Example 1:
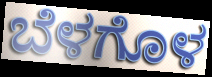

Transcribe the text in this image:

ಬೆಳಗೊಳ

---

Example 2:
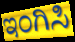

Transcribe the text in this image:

ಇಂಗಿಸಿ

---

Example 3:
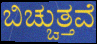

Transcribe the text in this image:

ಬಿಚ್ಚುತ್ತವೆ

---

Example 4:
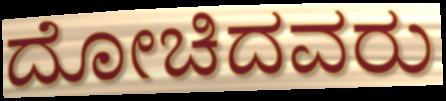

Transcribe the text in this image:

ದೋಚಿದವರು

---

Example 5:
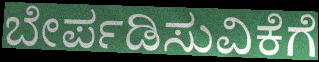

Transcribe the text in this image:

ಬೇರ್ಪಡಿಸುವಿಕೆಗೆ